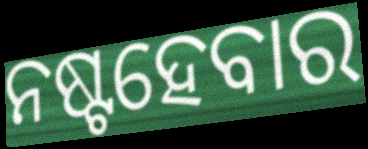
ନଷ୍ଟହେବାର